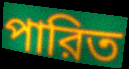
পারিত